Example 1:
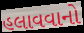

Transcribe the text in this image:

હલાવવાનો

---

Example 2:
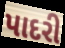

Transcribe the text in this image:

પાદરી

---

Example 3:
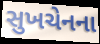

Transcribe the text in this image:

સુખચેનના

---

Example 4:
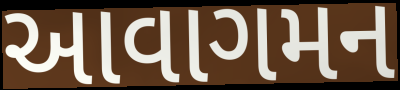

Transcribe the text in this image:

આવાગમન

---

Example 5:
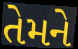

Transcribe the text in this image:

તેમને